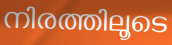
നിരത്തിലൂടെ